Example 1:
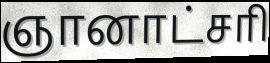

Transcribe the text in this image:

ஞானாட்சரி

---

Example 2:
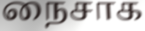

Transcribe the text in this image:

நைசாக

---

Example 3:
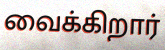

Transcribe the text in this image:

வைக்கிறார்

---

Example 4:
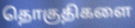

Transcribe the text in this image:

தொகுதிகளை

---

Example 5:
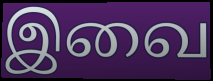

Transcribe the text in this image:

இவை